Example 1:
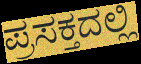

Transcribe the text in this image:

ಪ್ರಸಕ್ತದಲ್ಲಿ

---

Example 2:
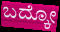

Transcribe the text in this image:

ಬದ್ಕೋ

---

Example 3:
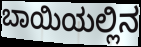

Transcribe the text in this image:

ಬಾಯಿಯಲ್ಲಿನ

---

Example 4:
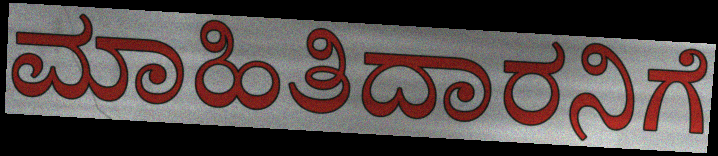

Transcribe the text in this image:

ಮಾಹಿತಿದಾರನಿಗೆ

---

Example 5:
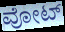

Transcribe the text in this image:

ವೋಟ್